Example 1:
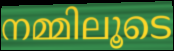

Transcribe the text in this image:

നമ്മിലൂടെ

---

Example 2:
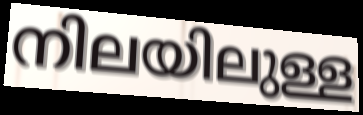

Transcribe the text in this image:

നിലയിലുള്ള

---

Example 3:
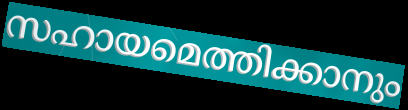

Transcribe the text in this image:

സഹായമെത്തിക്കാനും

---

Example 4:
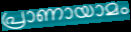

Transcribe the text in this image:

പ്രാണായാമം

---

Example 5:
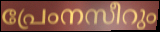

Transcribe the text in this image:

പ്രേംനസീറും